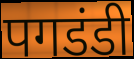
पगडंडी